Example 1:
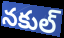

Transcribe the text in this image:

నకుల్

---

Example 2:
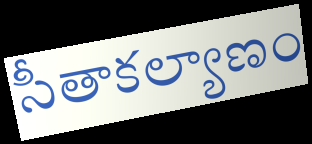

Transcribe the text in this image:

సీతాకల్యాణం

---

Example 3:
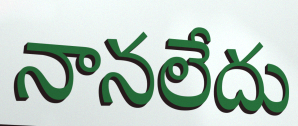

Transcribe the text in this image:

నానలేదు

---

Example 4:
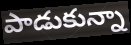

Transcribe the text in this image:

పాడుకున్నా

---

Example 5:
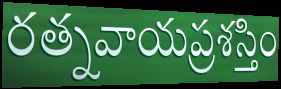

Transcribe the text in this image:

రత్నవాయప్రశస్తిం